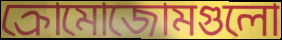
ক্রোমোজোমগুলো